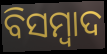
ବିସମ୍ୱାଦ